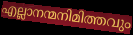
എല്ലാനന്മനിമിത്തവും